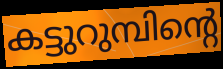
കട്ടുറുമ്പിന്റെ